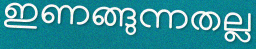
ഇണങ്ങുന്നതല്ല